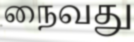
நைவது